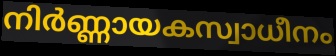
നിർണ്ണായകസ്വാധീനം